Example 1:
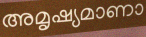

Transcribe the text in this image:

അമൃഷ്യമാണാ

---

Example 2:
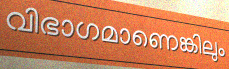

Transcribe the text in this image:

വിഭാഗമാണെങ്കിലും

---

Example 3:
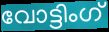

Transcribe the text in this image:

വോട്ടിംഗ്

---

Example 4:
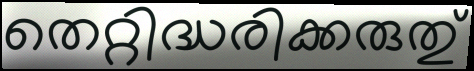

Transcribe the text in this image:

തെറ്റിദ്ധരിക്കരുതു്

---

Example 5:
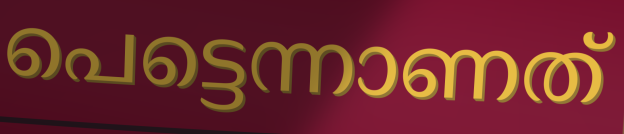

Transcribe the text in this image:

പെട്ടെന്നാണത്